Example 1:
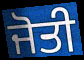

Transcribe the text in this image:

ਜੋਤੀ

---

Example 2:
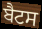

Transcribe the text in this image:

ਬੈਟਸ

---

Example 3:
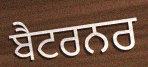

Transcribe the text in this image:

ਬੈਟਰਨਰ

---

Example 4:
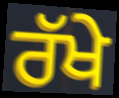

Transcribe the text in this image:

ਰੱਖੇ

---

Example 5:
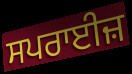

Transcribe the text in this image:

ਸਪਰਾਈਜ਼